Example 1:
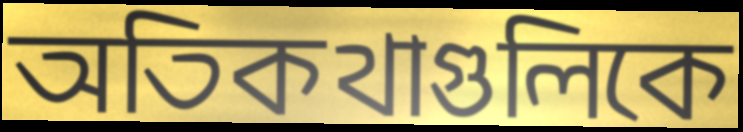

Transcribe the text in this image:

অতিকথাগুলিকে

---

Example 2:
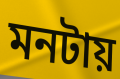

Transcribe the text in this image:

মনটায়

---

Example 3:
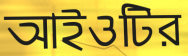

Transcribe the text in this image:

আইওটির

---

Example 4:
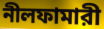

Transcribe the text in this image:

নীলফামারী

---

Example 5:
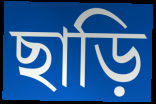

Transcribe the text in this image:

ছাড়ি